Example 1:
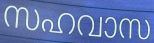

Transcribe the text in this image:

സഹവാസ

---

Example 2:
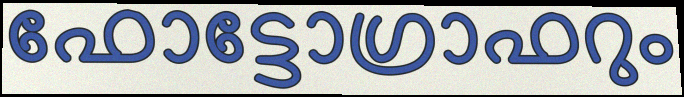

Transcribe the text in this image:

ഫോട്ടോഗ്രാഫറും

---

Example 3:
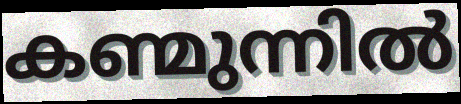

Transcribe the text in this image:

കണ്മുന്നിൽ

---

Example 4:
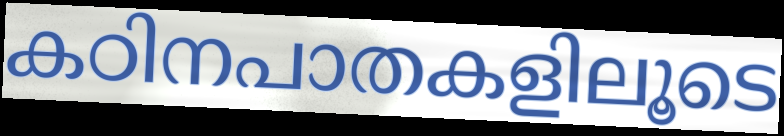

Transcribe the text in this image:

കഠിനപാതകളിലൂടെ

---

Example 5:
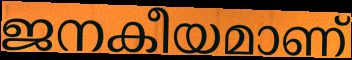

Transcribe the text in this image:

ജനകീയമാണ്